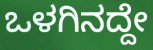
ಒಳಗಿನದ್ದೇ